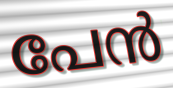
പേൻ